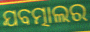
ଯବତ୍ମାଲର